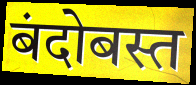
बंदोबस्त